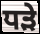
ਧੜੇ